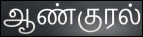
ஆண்குரல்